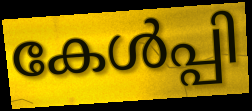
കേൾപ്പി